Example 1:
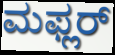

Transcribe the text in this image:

ಮಫ್ಲರ್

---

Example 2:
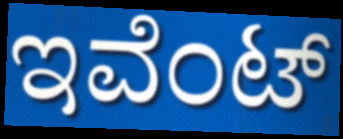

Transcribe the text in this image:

ಇವೆಂಟ್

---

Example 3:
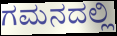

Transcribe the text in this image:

ಗಮನದಲ್ಲಿ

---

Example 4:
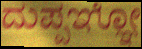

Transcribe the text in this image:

ದುಪ್ಪಞ್ಞೋ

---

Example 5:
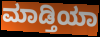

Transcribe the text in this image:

ಮಾಡ್ತಿಯಾ